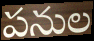
పనుల